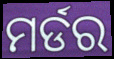
ମର୍ଡର